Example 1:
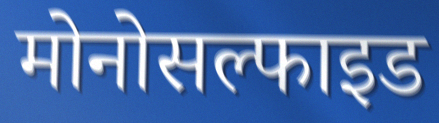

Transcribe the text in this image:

मोनोसल्फाइड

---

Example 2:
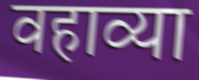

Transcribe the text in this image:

वहाव्या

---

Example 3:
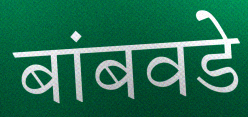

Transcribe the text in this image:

बांबवडे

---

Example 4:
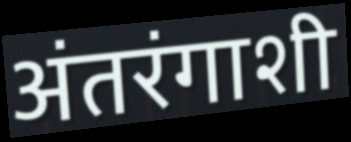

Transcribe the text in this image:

अंतरंगाशी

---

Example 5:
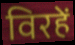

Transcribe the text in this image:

विरहें